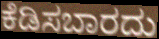
ಕೆಡಿಸಬಾರದು